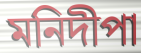
মনিদীপা